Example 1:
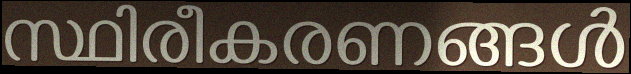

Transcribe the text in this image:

സ്ഥിരീകരണങ്ങൾ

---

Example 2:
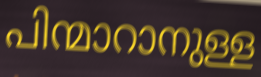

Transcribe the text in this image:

പിന്മാറാനുള്ള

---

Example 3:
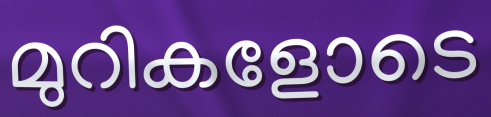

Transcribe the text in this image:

മുറികളോടെ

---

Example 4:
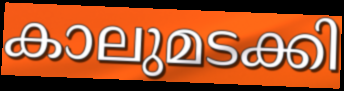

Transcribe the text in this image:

കാലുമടക്കി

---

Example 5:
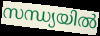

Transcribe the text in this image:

സന്ധ്യയിൽ